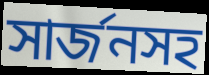
সার্জনসহ